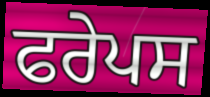
ਫਰੇਪਸ